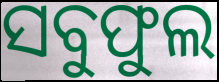
ସବୁଫୁଲ